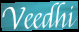
Veedhi